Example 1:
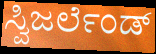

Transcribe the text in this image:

ಸ್ವಿಜರ್ಲೆಂಡ್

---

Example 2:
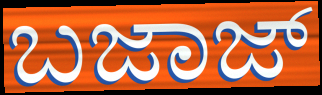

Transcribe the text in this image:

ಬಜಾಜ್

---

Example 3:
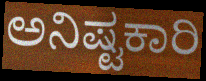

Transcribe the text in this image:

ಅನಿಷ್ಟಕಾರಿ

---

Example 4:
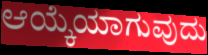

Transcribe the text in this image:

ಆಯ್ಕೆಯಾಗುವುದು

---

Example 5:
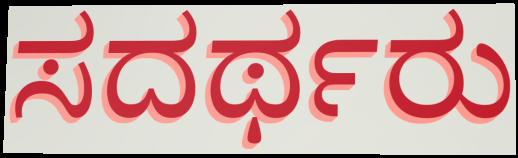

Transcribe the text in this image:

ಸದರ್ಥರು